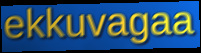
ekkuvagaa